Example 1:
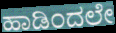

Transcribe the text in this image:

ಹಾಡಿಂದಲೇ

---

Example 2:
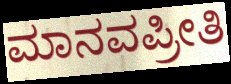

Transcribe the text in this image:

ಮಾನವಪ್ರೀತಿ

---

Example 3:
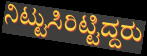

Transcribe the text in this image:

ನಿಟ್ಟುಸಿರಿಟ್ಟಿದ್ದರು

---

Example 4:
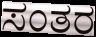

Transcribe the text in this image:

ಸಂತರ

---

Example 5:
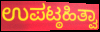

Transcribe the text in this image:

ಉಪಟ್ಠಹಿತ್ವಾ